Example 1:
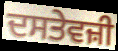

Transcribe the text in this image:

ਦਸਤੇਵਜ਼ੀ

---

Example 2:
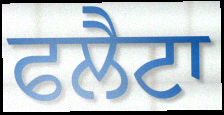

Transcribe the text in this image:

ਫਲੈਟਾ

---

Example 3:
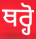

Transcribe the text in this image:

ਥਰ੍ਹੋ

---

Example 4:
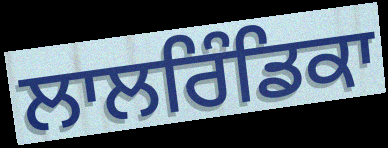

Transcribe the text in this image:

ਲਾਲਰਿੰਡਿਕਾ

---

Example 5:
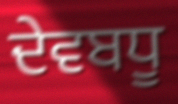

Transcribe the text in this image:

ਦੇਵਬਧੂ